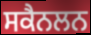
ਸਕੈਨਲਨ